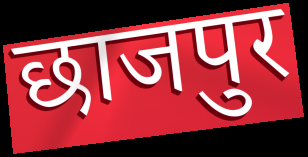
छाजपुर